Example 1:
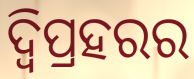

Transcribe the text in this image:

ଦ୍ବିପ୍ରହରର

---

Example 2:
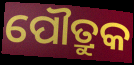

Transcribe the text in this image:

ପୌତ୍ରୁକ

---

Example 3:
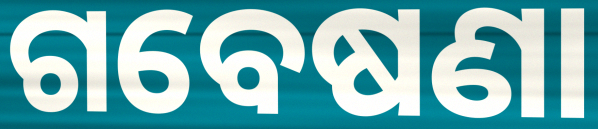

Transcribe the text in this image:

ଗବେଷଣା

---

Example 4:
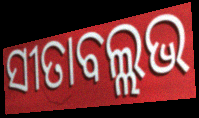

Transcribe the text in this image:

ସୀତାବଲ୍ଲଭ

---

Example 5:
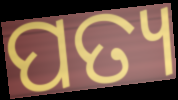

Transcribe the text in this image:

ପତ୍ୟ